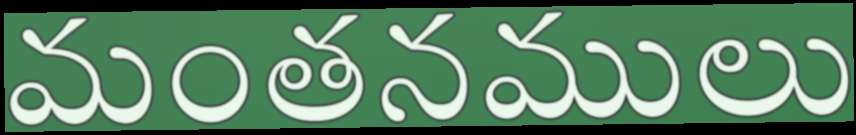
మంతనములు